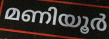
മണിയൂർ